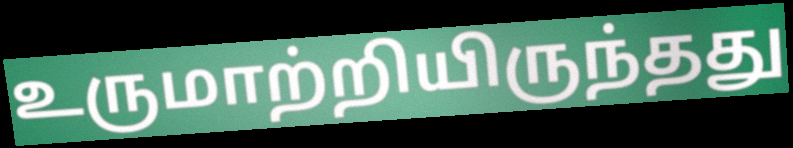
உருமாற்றியிருந்தது